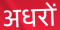
अधरों